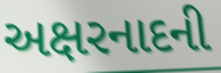
અક્ષરનાદની